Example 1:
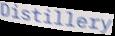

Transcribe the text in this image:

Distillery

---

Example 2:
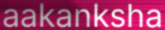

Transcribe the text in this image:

aakanksha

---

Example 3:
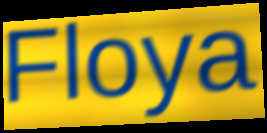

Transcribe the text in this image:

Floya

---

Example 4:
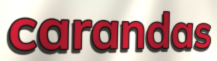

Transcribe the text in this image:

carandas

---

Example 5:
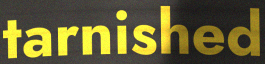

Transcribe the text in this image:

tarnished